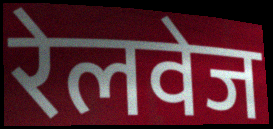
रेलवेज